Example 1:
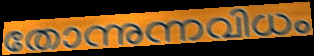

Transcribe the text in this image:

തോന്നുന്നവിധം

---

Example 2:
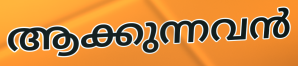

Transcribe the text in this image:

ആക്കുന്നവൻ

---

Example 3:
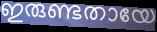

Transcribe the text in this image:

ഇരുണ്ടതായേ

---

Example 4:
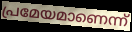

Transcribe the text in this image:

പ്രമേയമാണെന്ന്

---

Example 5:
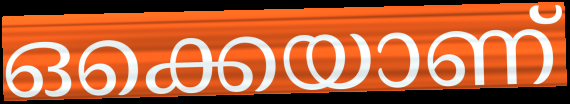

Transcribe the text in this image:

ഒക്കെയാണ്